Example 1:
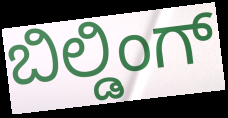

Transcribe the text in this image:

ಬಿಲ್ಡಿಂಗ್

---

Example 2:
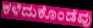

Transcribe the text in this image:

ಕಳೆದುಕೊಂಡೆವು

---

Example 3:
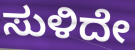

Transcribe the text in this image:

ಸುಳಿದೇ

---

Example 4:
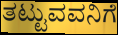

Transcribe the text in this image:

ತಟ್ಟುವವನಿಗೆ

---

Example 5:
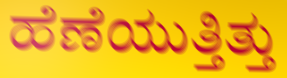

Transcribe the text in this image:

ಹೆಣೆಯುತ್ತಿತ್ತು